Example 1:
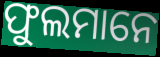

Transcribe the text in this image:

ଫୁଲମାନେ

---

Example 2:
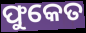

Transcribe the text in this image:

ଫୁକେତ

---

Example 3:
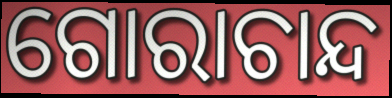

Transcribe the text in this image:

ଗୋରାଚାନ୍ଦ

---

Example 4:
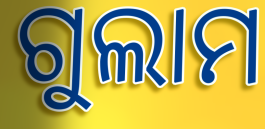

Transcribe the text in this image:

ଗୁଲାମ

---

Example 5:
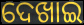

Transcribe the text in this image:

ଦେଖାଇ